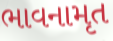
ભાવનામૃત